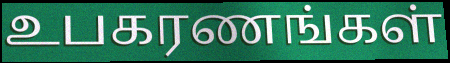
உபகரணங்கள்